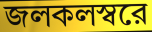
জলকলস্বরে